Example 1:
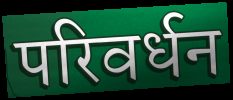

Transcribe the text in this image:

परिवर्धन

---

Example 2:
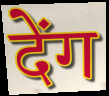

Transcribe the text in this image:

देंग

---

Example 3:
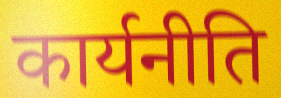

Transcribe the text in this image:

कार्यनीति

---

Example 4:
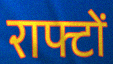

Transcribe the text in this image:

राफ्टों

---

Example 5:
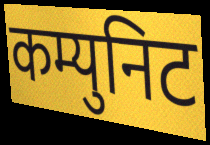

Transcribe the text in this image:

कम्युनिट